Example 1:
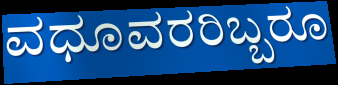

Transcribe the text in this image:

ವಧೂವರರಿಬ್ಬರೂ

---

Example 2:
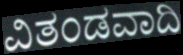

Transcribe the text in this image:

ವಿತಂಡವಾದಿ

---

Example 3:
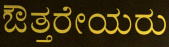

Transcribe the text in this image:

ಔತ್ತರೇಯರು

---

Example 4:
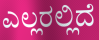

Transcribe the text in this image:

ಎಲ್ಲರಲ್ಲಿದೆ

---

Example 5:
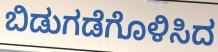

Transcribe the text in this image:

ಬಿಡುಗಡೆಗೊಳಿಸಿದ